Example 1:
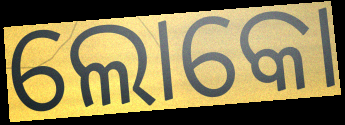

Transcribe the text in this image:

ଲୋକୋ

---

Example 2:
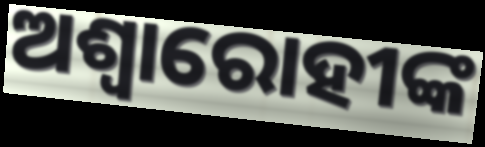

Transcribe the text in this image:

ଅଶ୍ୱାରୋହୀଙ୍କ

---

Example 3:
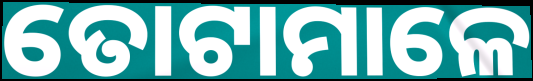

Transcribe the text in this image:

ତୋଟାମାଳେ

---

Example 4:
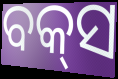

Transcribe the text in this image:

ବକ୍‌ସ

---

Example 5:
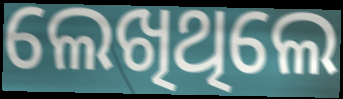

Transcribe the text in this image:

ଲେଖିଥିଲେ